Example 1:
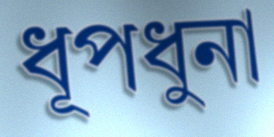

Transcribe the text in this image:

ধূপধুনা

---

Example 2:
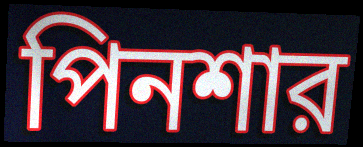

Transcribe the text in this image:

পিনশার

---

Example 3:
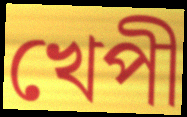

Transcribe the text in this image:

খেপী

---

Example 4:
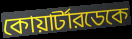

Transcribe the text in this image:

কোয়ার্টারডেকে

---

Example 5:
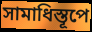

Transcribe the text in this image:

সামাধিস্তূপে